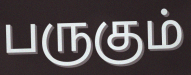
பருகும்